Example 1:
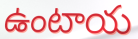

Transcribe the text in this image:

ఉంటాయ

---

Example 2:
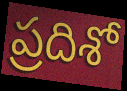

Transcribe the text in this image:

ప్రదిశో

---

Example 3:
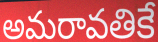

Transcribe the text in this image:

అమరావతికే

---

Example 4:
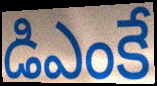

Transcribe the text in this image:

డిఎంకే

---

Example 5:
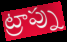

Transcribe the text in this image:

ట్రాప్ను